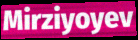
Mirziyoyev